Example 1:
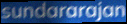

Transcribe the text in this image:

sundararajan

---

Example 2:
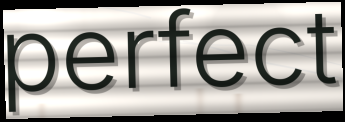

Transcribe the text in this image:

perfect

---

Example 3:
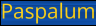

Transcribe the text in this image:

Paspalum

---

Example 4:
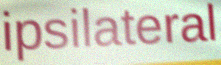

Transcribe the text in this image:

ipsilateral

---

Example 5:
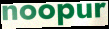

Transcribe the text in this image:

noopur